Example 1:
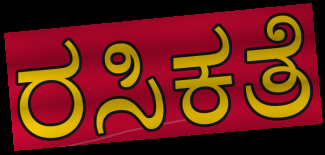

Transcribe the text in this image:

ರಸಿಕತೆ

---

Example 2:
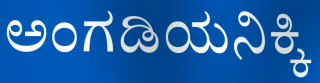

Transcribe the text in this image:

ಅಂಗಡಿಯನಿಕ್ಕಿ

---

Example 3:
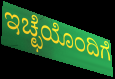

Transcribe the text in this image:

ಇಚ್ಛೆಯೊಂದಿಗೆ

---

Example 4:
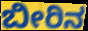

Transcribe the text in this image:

ಬೀರಿನ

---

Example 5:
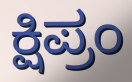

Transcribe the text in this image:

ಕ್ಷಿಪ್ರಂ